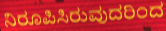
ನಿರೂಪಿಸಿರುವುದರಿಂದ